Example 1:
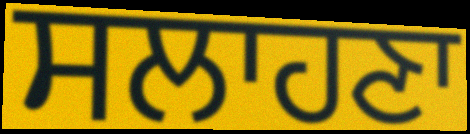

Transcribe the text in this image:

ਸਲਾਹਣਾ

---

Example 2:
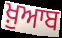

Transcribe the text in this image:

ਖ਼ੁਆਬ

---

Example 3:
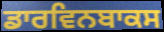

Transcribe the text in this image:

ਡਾਰਵਿਨਬਾਕਸ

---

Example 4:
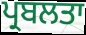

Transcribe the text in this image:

ਪ੍ਰਬਲਤਾ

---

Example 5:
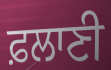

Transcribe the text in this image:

ਫ਼ਲਾਣੀ